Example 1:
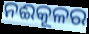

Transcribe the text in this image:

ନଈକୂଳର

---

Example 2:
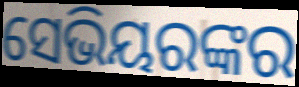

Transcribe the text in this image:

ସେଭିୟରଙ୍କର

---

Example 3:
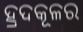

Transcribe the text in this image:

ହ୍ରଦକୂଳର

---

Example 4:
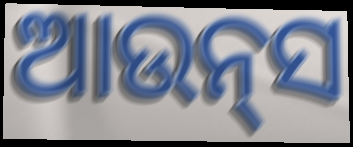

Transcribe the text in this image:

ଆଉନ୍‍ସ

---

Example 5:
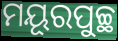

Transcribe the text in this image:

ମୟୂରପୁଚ୍ଛ